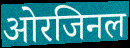
ओरजिनल